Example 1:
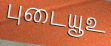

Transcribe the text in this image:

புடையூஉ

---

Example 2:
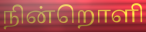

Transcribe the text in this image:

நின்றொளி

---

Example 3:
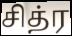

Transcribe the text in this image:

சித்ர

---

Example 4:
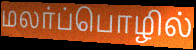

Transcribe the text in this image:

மலர்ப்பொழில்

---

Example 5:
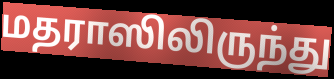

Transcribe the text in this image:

மதராஸிலிருந்து